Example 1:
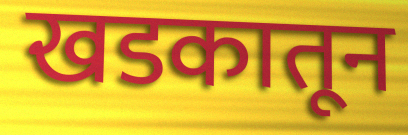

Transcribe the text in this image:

खडकातून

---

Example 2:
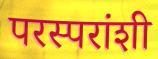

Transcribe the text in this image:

परस्परांशी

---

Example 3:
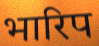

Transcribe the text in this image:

भारिप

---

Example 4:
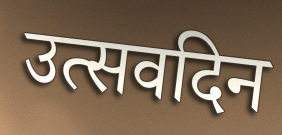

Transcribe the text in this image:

उत्सवदिन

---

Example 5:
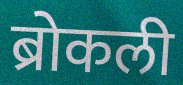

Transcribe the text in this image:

ब्रोकली